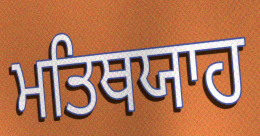
ਮਤਿਥਯਾਹ